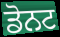
ਡੋਨਟ